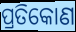
ପ୍ରତିକୋଣ